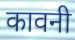
कावनी